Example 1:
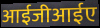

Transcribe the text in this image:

आईजीआईए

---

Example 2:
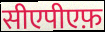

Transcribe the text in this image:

सीएपीएफ़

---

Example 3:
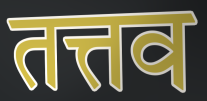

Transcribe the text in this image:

तत्तव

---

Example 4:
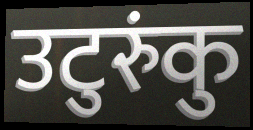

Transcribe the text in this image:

उटुरुंकु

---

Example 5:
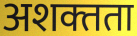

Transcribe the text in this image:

अशक्‍तता